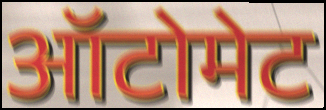
ऑटोमेट